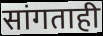
सांगताही